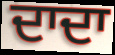
ਦਾਦਾ